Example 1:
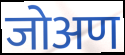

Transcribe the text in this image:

जोअण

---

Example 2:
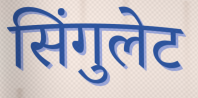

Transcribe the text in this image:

सिंगुलेट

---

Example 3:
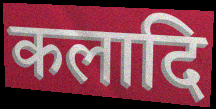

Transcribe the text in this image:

कलादि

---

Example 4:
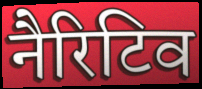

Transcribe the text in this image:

नैरिटिव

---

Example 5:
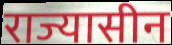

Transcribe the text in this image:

राज्यासीन